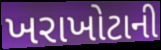
ખરાખોટાની